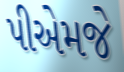
પીએમજે